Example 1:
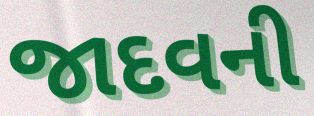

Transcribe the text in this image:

જાદવની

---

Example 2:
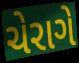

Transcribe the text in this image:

ચેરાગે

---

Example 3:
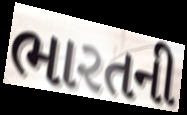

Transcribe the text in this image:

ભારતની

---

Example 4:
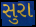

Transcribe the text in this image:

સુરા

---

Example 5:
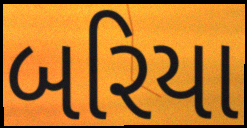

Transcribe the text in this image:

બરિયા